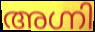
അഗ്നി